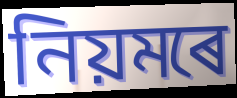
নিয়মৰে